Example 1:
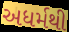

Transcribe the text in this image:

અધર્મથી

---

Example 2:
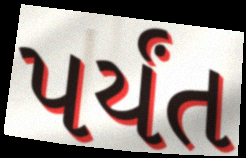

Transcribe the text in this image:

પર્યંત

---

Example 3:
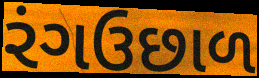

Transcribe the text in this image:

રંગઉછાળ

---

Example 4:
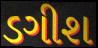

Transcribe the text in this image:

ડગીશ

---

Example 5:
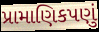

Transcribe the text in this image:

પ્રામાણિકપણું